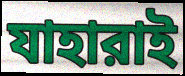
যাহারাই